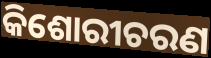
କିଶୋରୀଚରଣ